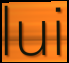
lui